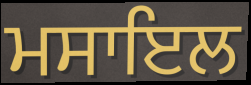
ਮਸਾਇਲ